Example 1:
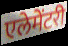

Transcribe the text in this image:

एलेमेंटरी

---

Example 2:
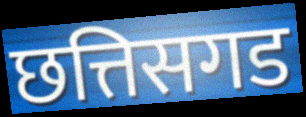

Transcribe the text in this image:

छत्तिसगड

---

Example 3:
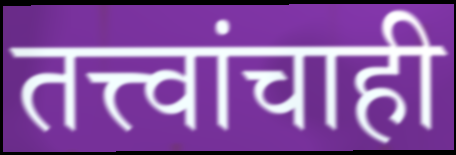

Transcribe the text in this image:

तत्त्वांचाही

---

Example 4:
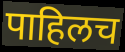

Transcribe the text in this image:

पाहिलच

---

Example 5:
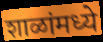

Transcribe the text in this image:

शाळांमध्ये